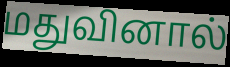
மதுவினால்